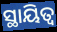
ସ୍ଥାୟିତ୍ୱ